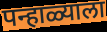
पन्हाळ्याला